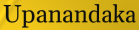
Upanandaka